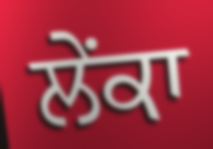
ਲੇਂਕਾ